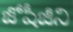
జోషీజీని